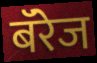
बॅरेज